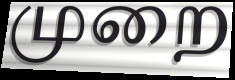
முறை